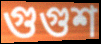
গুগুশ